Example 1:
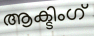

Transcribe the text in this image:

ആക്ടിംഗ്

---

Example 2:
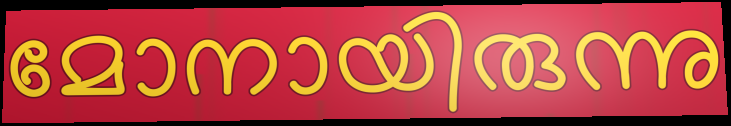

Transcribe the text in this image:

മോനായിരുന്നു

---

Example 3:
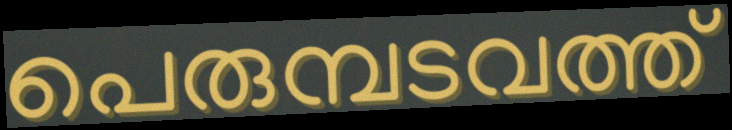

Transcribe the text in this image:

പെരുമ്പടവത്ത്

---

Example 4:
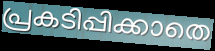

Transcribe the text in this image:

പ്രകടിപ്പിക്കാതെ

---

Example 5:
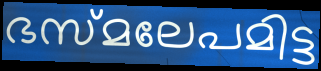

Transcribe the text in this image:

ഭസ്മലേപമിട്ട